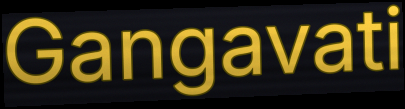
Gangavati